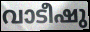
വാടീഷു